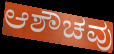
ಆಶೌಚವು